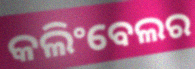
କଲିଂବେଲର